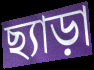
ছ্যাড়া